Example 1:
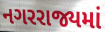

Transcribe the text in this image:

નગરરાજ્યમાં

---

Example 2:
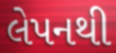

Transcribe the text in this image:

લેપનથી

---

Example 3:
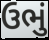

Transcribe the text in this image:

ઉભું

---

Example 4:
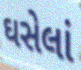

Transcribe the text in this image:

ઘસેલાં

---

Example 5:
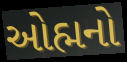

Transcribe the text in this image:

ઓહ્મનો